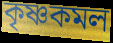
কৃষ্ণকমল